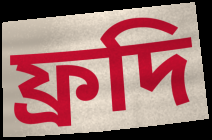
ফ্রদি